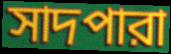
সাদপারা